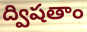
ద్విషతాం